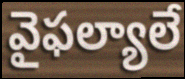
వైఫల్యాలే